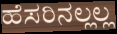
ಹೆಸರಿನಲ್ಲಲ್ಲ